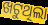
ଖଟୁଥିଲା